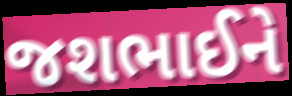
જશભાઈને